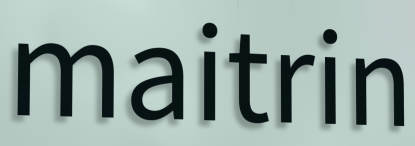
maitrin